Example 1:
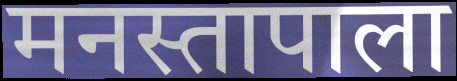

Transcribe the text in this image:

मनस्तापाला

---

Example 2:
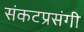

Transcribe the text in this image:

संकटप्रसंगी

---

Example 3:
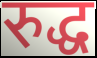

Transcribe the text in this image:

रुद्ध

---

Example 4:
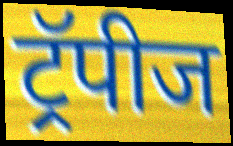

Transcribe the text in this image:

ट्रॅपीज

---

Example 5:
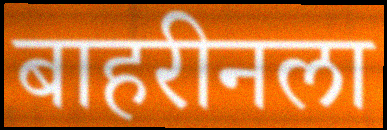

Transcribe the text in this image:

बाहरीनला